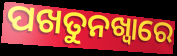
ପଖତୁନଖ୍ୱାରେ